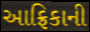
આફ્રિકાની